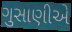
ગુસાણીએ